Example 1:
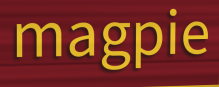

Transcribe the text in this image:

magpie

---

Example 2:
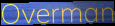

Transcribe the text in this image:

Overman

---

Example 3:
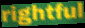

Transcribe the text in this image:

rightful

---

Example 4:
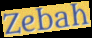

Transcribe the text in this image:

Zebah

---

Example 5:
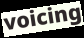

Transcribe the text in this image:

voicing